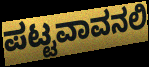
ಪಟ್ಟವಾವನಲಿ